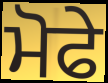
ਮੋਫੇ